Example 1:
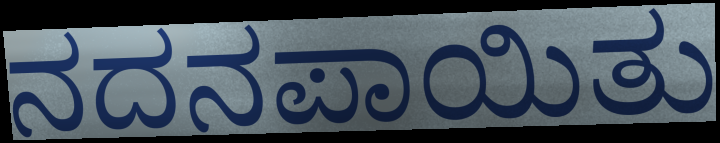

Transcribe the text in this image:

ನದನಪಾಯಿತು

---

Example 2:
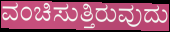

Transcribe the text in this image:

ವಂಚಿಸುತ್ತಿರುವುದು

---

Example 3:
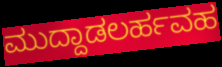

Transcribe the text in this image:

ಮುದ್ದಾಡಲರ್ಹವಹ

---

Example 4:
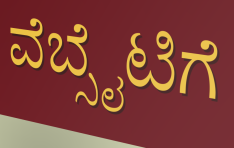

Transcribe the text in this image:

ವೆಬ್ಸೈಟಿಗೆ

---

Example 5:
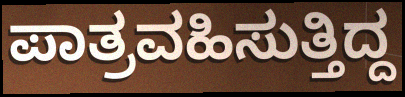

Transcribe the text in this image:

ಪಾತ್ರವಹಿಸುತ್ತಿದ್ದ